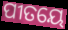
ପୀତୟେ